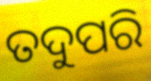
ତଦୁପରି